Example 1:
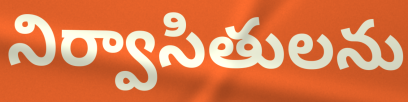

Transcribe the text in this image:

నిర్వాసితులను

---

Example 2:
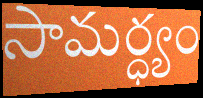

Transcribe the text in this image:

సామర్ధ్యం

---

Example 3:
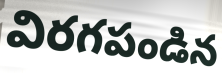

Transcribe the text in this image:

విరగపండిన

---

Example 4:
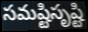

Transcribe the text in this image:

సమష్టిసృష్టి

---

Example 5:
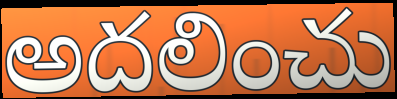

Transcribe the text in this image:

అదలించు